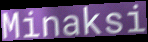
Minaksi